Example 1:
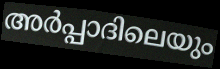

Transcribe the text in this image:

അർപ്പാദിലെയും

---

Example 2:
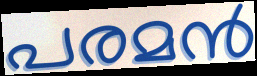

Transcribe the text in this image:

പരമൻ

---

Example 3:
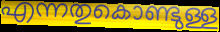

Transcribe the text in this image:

എന്നതുകൊണ്ടുള്ള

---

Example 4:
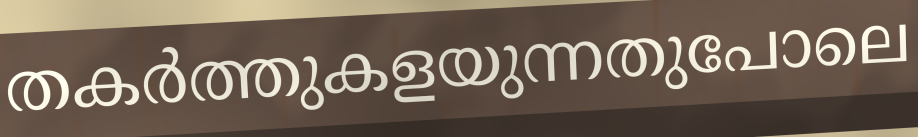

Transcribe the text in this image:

തകർത്തുകളയുന്നതുപോലെ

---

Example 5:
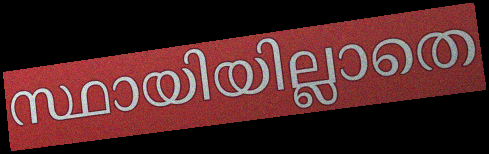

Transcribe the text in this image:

സ്ഥായിയില്ലാതെ